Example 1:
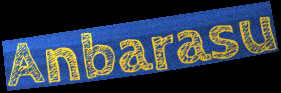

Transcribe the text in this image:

Anbarasu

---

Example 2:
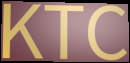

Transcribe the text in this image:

KTC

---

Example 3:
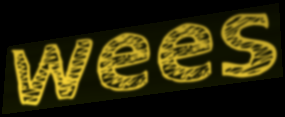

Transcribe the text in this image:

wees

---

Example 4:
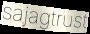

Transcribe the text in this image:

sajagtrust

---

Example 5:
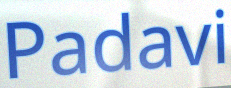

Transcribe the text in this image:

Padavi